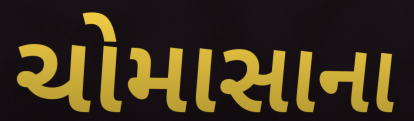
ચોમાસાના